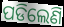
ପଡିଲେଣି